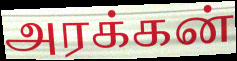
அரக்கன்